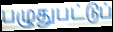
பழுதுபட்டுப்